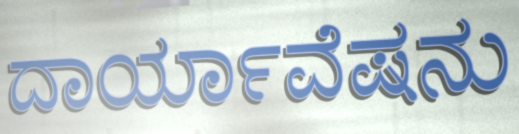
ದಾರ್ಯಾವೆಷನು